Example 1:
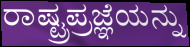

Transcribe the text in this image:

ರಾಷ್ಟ್ರಪ್ರಜ್ಞೆಯನ್ನು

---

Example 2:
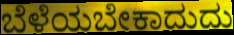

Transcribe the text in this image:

ಬೆಳೆಯಬೇಕಾದುದು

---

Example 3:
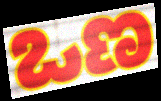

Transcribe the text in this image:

ಒಣ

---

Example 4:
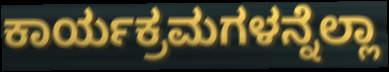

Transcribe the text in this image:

ಕಾರ್ಯಕ್ರಮಗಳನ್ನೆಲ್ಲಾ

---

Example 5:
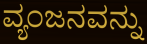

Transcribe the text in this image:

ವ್ಯಂಜನವನ್ನು